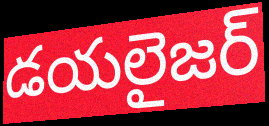
డయలైజర్